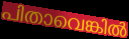
പിതാവെങ്കിൽ